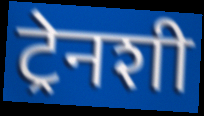
ट्रेनशी